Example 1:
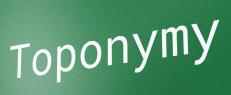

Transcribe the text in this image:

Toponymy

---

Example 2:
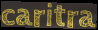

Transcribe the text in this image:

caritra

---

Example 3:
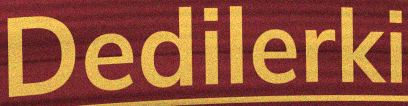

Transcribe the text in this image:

Dedilerki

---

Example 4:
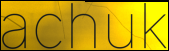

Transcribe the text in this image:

achuk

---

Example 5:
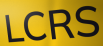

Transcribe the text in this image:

LCRS